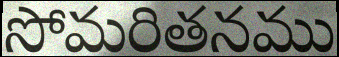
సోమరితనము